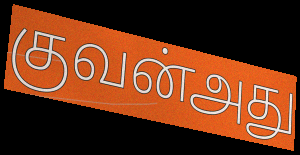
குவன்அது